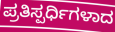
ಪ್ರತಿಸ್ಪರ್ಧಿಗಳಾದ